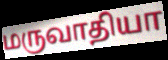
மருவாதியா